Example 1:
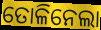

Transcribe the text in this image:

ତୋଳିନେଲା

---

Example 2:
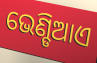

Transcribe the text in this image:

ଭେଣ୍ଡିଆଏ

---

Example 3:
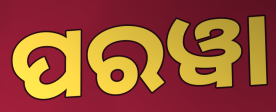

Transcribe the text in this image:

ପରୱା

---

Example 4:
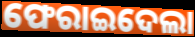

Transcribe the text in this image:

ଫେରାଇଦେଲା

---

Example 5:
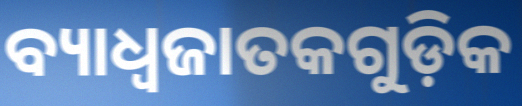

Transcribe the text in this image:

ବ୍ୟାଧ୍ଵଜାତକଗୁଡ଼ିକ